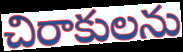
చిరాకులను